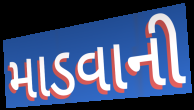
માડવાની